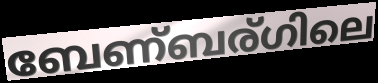
ബേണ്ബര്ഗിലെ